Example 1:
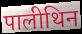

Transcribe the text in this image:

पालीथिन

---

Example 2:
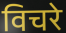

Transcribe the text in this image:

विचरे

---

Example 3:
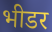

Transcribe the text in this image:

भीडर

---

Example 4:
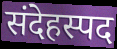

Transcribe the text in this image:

संदेहस्पद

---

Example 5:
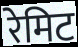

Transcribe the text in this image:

रेमिट